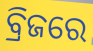
ବ୍ରିଜରେ